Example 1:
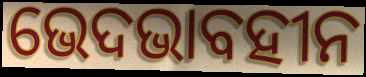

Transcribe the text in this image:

ଭେଦଭାବହୀନ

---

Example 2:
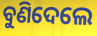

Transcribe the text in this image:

ବୁଣିଦେଲେ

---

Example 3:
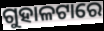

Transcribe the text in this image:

ଗୁହାଳଟାରେ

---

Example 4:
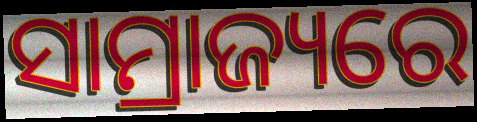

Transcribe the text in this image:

ସାମ୍ରାଜ୍ୟରେ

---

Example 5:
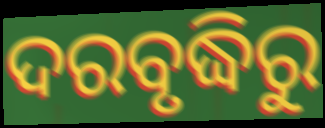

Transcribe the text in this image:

ଦରବୃଦ୍ଧିରୁ